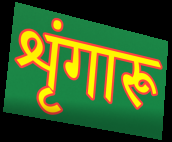
शृंगारू